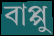
বাপ্পু